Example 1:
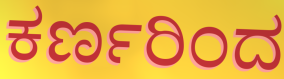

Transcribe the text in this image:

ಕರ್ಣರಿಂದ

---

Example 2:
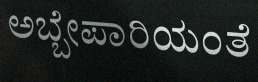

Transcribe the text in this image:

ಅಬ್ಬೇಪಾರಿಯಂತೆ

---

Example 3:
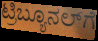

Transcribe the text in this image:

ಟ್ರಿಬ್ಯೂನಲ್‌ಗೆ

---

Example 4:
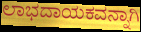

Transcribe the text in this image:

ಲಾಭದಾಯಕವನ್ನಾಗಿ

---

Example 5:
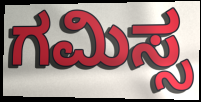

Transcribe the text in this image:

ಗಮಿಸ್ಸ